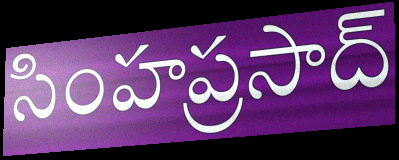
సింహప్రసాద్